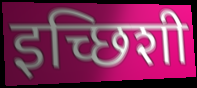
इच्छिशी